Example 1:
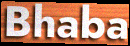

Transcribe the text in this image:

Bhaba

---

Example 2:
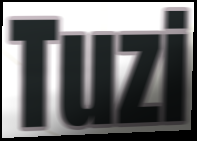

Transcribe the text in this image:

Tuzi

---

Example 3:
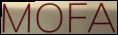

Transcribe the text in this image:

MOFA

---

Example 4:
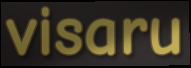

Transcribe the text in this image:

visaru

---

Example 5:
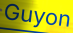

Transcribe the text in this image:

Guyon